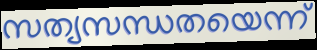
സത്യസന്ധതയെന്ന്